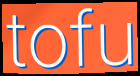
tofu